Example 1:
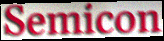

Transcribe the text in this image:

Semicon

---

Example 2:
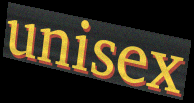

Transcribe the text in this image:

unisex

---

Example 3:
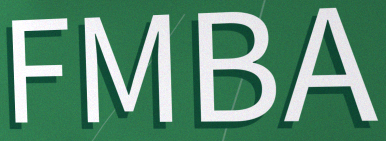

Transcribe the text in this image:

FMBA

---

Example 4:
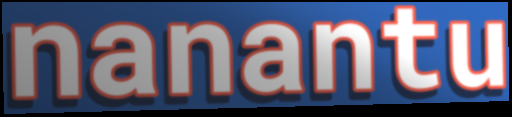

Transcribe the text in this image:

nanantu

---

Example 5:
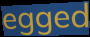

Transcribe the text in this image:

egged